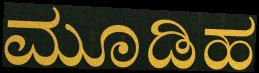
ಮೂಡಿಹ